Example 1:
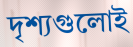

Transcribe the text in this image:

দৃশ্যগুলোই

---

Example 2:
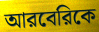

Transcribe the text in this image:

আরবেরিকে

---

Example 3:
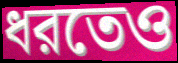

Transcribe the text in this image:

ধরতেও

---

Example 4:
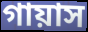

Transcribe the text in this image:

গায়াস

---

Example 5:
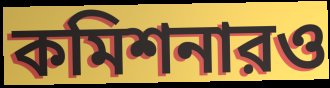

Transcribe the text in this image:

কমিশনারও